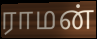
ராமன்